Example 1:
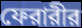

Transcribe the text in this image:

ফেরারীর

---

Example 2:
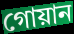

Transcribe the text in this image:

গোয়ান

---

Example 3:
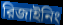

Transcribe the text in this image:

রিজাইনিং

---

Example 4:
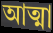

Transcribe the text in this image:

আত্মা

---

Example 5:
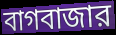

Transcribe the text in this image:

বাগবাজার